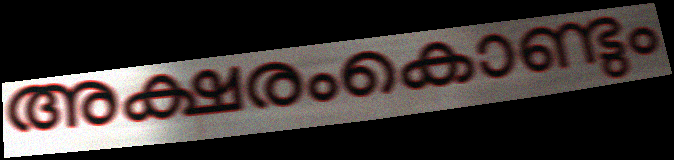
അക്ഷരംകൊണ്ടും